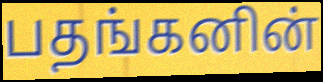
பதங்கனின்